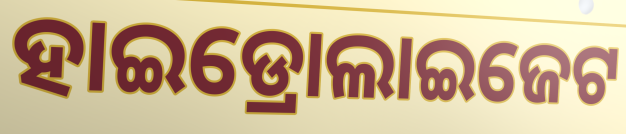
ହାଇଡ୍ରୋଲାଇଜେଟ